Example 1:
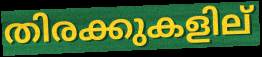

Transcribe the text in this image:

തിരക്കുകളില്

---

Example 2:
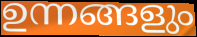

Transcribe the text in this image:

ഉന്നങ്ങളും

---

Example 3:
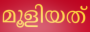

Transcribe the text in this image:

മൂളിയത്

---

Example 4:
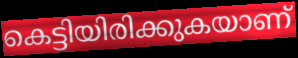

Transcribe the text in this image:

കെട്ടിയിരിക്കുകയാണ്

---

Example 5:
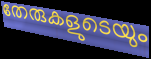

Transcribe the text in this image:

തേരുകളുടെയും